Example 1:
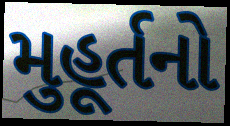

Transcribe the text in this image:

મુહૂર્તનો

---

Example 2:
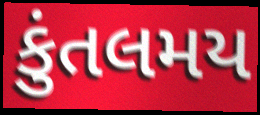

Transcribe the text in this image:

કુંતલમય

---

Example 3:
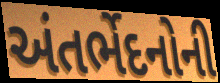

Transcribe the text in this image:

અંતર્ભેદનોની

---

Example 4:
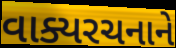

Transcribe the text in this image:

વાક્યરચનાને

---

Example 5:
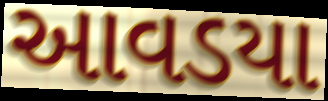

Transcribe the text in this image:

આવડયા